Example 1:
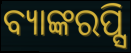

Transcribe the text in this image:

ବ୍ୟାଙ୍କରପ୍ସି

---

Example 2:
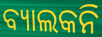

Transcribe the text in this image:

ବ୍ୟାଲକନି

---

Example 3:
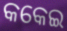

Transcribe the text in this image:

କକେଇ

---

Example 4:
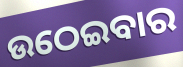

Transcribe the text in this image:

ଉଠେଇବାର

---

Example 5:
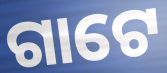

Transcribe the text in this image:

ଗାଟେ